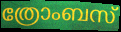
ത്രോംബസ്